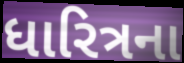
ધારિત્રના